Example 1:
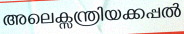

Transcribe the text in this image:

അലെക്സന്ത്രിയക്കപ്പൽ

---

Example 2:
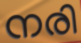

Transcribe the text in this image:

നരി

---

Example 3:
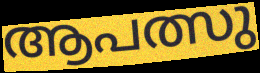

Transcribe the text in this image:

ആപത്സു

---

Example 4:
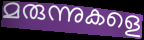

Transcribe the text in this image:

മരുന്നുകളെ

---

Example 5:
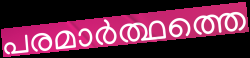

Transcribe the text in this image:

പരമാർത്ഥത്തെ